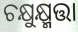
ଚକ୍ଷୁକ୍ଷ୍ମତ୍ତା